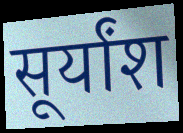
सूर्यांश